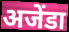
अजेंडा